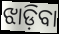
ଝାଡ଼ିବା